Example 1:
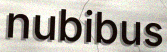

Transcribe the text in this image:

nubibus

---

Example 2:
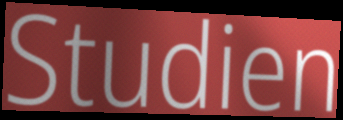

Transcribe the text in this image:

Studien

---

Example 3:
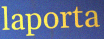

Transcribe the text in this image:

laporta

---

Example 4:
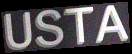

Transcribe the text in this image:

USTA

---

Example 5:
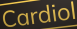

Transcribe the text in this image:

Cardiol